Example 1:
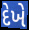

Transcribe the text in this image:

દેખે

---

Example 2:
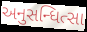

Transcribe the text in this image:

અનુસન્ધિત્સા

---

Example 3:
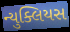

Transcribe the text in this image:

ન્યુક્લિયસ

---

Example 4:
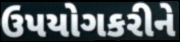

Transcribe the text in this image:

ઉપયોગકરીને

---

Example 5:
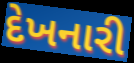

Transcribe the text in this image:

દેખનારી